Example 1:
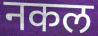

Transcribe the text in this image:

नकल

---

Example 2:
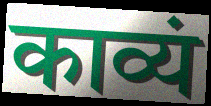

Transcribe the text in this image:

काव्यं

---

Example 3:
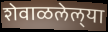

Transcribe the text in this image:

शेवाळलेल्या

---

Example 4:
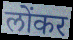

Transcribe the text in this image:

लोंकर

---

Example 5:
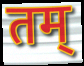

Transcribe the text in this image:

तम्